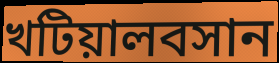
খটিয়ালবসান